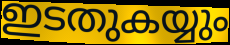
ഇടതുകയ്യും